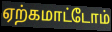
ஏற்கமாட்டோம்